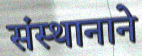
संस्थानाने